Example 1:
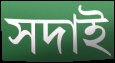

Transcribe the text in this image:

সদাই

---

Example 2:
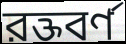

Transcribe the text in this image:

রক্তবর্ণ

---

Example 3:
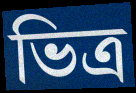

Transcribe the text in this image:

ভিত্র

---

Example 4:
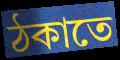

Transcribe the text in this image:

ঠকাতে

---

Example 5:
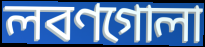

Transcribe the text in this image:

লবণগোলা